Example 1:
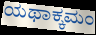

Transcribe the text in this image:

ಯಥಾಕ್ಕಮಂ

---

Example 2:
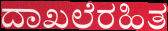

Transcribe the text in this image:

ದಾಖಲೆರಹಿತ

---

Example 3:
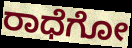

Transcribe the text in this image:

ರಾಧೆಗೋ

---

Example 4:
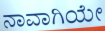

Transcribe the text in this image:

ನಾವಾಗಿಯೇ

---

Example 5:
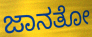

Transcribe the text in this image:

ಜಾನತೋ